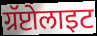
ग्रॅप्टोलाइट